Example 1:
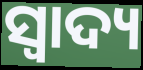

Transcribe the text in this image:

ସ୍ଵାଦ୍ୟ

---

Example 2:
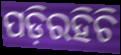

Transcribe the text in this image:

ପଡ଼ିରହିଚି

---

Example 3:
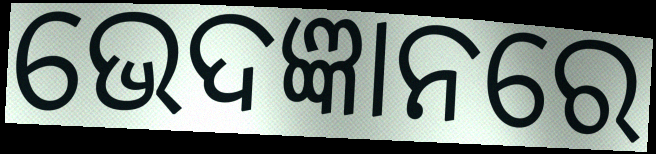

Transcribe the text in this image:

ଭେଦଜ୍ଞାନରେ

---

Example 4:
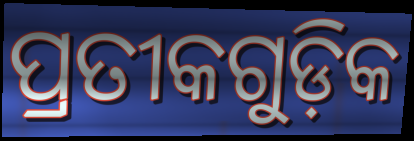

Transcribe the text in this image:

ପ୍ରତୀକଗୁଡ଼ିକ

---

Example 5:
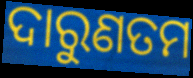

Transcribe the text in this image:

ଦାରୁଣତମ